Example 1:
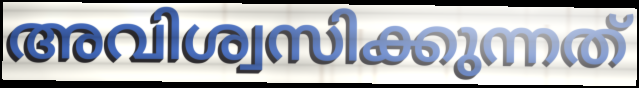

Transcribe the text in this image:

അവിശ്വസിക്കുന്നത്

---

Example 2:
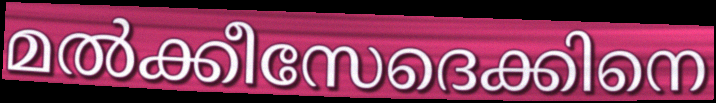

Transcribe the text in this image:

മൽക്കീസേദെക്കിനെ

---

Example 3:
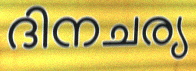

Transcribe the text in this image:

ദിനചര്യ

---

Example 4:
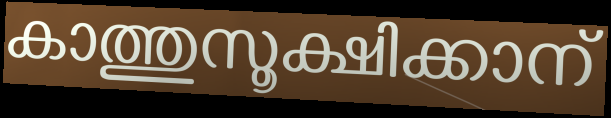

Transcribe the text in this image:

കാത്തുസൂക്ഷിക്കാന്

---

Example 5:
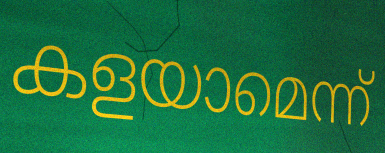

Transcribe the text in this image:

കളയാമെന്ന്